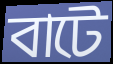
বাটে